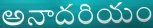
అనాదరియం